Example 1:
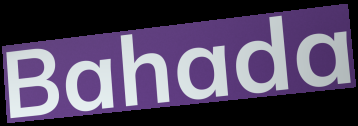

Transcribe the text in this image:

Bahada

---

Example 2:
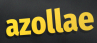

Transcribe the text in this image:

azollae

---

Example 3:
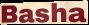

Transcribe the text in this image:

Basha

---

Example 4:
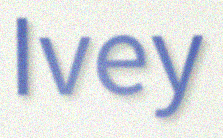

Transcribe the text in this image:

Ivey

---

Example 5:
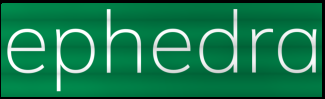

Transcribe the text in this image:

ephedra